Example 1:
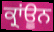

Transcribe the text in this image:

ਕ੍ਰਾਂਊਨ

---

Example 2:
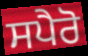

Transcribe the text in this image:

ਸਪੈਰੋ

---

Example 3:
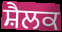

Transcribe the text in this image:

ਸ਼ੈਲਕ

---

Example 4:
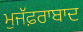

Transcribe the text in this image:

ਮੁਜੱਫ਼ਰਾਬਾਦ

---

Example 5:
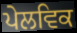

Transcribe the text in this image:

ਪੇਲਵਿਕ